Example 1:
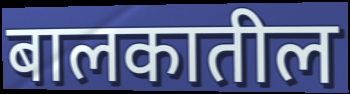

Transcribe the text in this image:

बालकातील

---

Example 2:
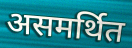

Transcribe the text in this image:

असमर्थित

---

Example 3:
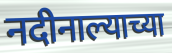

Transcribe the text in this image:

नदीनाल्याच्या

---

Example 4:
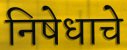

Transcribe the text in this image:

निषेधाचे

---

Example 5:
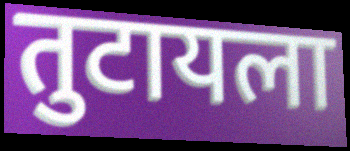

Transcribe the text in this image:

तुटायला